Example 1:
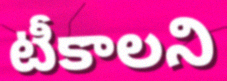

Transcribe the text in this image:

టీకాలని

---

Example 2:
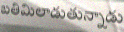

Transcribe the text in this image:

బతిమిలాడుతున్నాడు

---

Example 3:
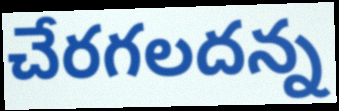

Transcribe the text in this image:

చేరగలదన్న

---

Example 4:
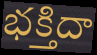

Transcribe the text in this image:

భక్తిదా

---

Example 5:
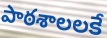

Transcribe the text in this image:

పాఠశాలలకే